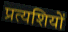
प्रत्यशियों